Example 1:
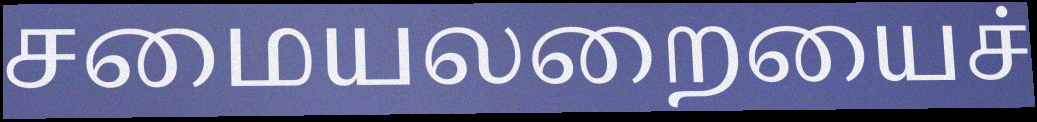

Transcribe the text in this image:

சமையலறையைச்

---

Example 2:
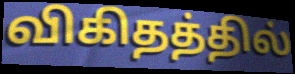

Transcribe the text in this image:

விகிதத்தில்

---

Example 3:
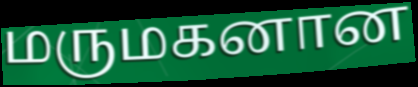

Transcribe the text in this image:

மருமகனான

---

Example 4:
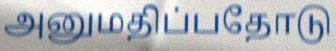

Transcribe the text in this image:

அனுமதிப்பதோடு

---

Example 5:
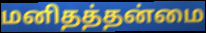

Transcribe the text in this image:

மனிதத்தன்மை